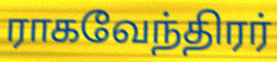
ராகவேந்திரர்